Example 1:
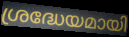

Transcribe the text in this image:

ശ്രദ്ധേയമായി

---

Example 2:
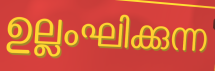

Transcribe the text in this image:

ഉല്ലംഘിക്കുന്ന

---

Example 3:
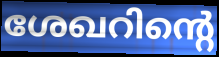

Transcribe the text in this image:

ശേഖറിന്റെ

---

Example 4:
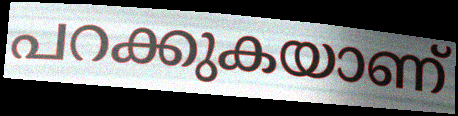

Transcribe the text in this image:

പറക്കുകയാണ്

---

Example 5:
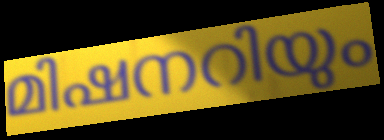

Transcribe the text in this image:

മിഷനറിയും